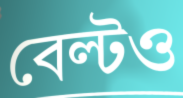
বেল্টও